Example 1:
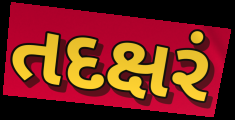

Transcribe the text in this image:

તદક્ષરં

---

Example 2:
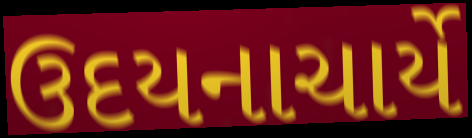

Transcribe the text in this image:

ઉદયનાચાર્યે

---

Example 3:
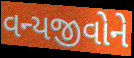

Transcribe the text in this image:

વન્યજીવોને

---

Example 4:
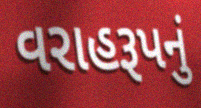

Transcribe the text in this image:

વરાહરૂપનું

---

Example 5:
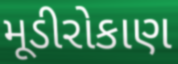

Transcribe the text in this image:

મૂડીરોકાણ